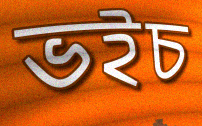
ভইচ